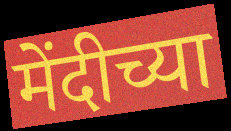
मेंदीच्या